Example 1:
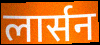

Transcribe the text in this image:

लार्सन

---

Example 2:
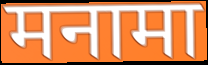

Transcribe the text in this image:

मनामा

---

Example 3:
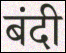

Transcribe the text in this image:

बंदी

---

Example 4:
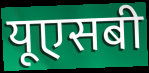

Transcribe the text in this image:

यूएसबी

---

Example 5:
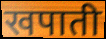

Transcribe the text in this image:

खपाती